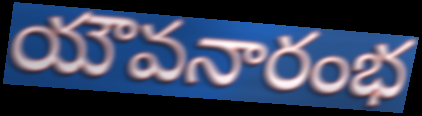
యౌవనారంభ